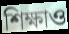
শিক্ষাও